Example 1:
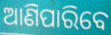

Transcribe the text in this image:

ଆଣିପାରିବେ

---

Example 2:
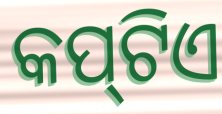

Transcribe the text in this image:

କପ୍‌ଟିଏ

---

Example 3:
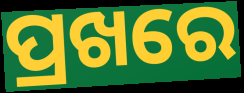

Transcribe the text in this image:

ପ୍ରଖରେ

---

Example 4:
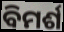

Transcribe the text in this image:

ବିମର୍ଶ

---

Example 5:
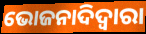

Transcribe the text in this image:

ଭୋଜନାଦିଦ୍ୱାରା